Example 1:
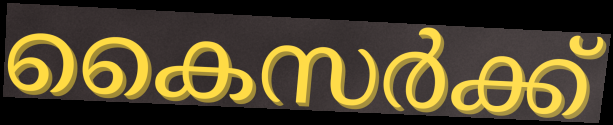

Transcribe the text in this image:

കൈസർക്ക്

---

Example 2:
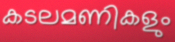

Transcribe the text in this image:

കടലമണികളും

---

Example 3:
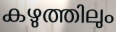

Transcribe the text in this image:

കഴുത്തിലും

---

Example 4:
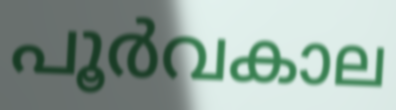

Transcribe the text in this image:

പൂർവകാല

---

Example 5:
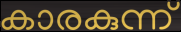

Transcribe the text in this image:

കാരകുന്ന്